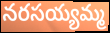
నరసయ్యమ్మ